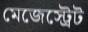
মেজেস্ট্রেট